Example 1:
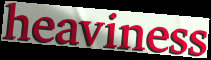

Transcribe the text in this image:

heaviness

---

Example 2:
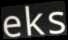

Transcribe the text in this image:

eks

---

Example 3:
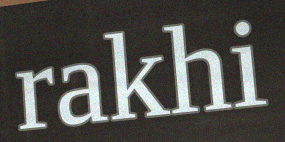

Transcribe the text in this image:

rakhi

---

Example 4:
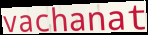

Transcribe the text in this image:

vachanat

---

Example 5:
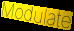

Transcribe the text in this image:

Modulate